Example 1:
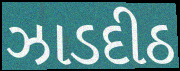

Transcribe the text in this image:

ઝાડદીઠ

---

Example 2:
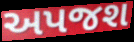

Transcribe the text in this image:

અપજશ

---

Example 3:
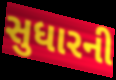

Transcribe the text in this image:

સુધારની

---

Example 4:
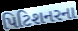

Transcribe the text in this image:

પિટિશનરના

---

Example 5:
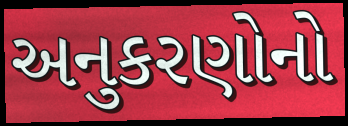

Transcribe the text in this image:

અનુકરણોનો